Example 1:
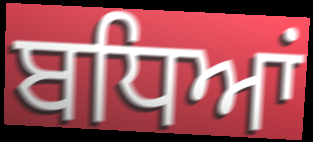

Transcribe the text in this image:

ਬਧਿਆਂ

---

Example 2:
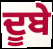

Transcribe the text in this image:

ਦੂਬੇ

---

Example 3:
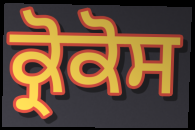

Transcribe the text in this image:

ਕ੍ਰੋਕੋਸ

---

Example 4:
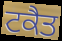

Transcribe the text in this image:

ਟਕੈਤ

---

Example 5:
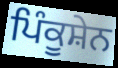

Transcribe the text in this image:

ਪਿੰਕੂਸ਼ੇਨ